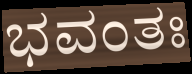
ಭವಂತಃ